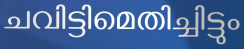
ചവിട്ടിമെതിച്ചിട്ടും